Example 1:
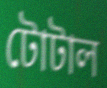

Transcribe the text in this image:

টোটাল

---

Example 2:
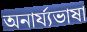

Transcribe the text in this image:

অনার্য্যভাষা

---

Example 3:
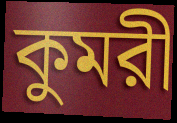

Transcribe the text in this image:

কুমরী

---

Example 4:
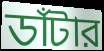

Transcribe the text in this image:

ডাঁটার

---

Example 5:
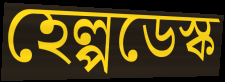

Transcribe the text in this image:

হেল্পডেস্ক